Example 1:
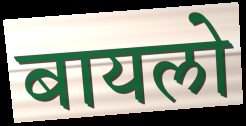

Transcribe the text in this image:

बायलो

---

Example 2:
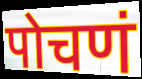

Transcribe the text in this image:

पोचणं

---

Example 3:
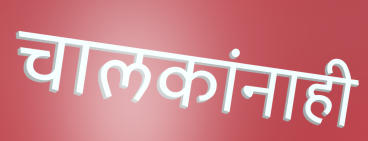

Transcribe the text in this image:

चालकांनाही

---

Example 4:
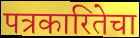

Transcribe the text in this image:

पत्रकारितेचा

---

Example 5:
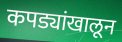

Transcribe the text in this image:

कपड्यांखालून